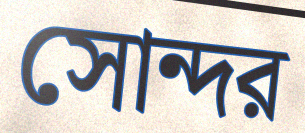
সোন্দর